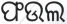
ଫଉଲ